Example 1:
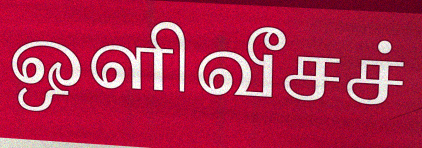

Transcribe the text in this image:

ஒளிவீசச்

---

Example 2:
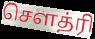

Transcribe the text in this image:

சௌத்ரி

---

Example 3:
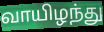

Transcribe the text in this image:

வாயிழந்து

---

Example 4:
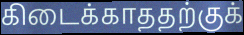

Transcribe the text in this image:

கிடைக்காததற்குக்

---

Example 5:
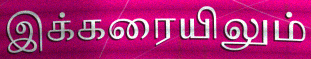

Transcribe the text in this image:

இக்கரையிலும்